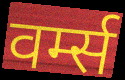
वर्म्स